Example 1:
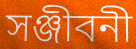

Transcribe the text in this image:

সঞ্জীবনী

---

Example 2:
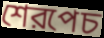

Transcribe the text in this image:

শেরপেচ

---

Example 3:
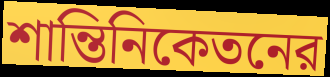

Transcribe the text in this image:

শান্তিনিকেতনের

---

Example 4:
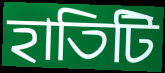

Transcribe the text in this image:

হাতিটি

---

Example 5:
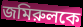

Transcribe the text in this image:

জমিরুলকে